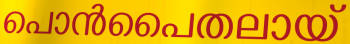
പൊൻപൈതലായ്